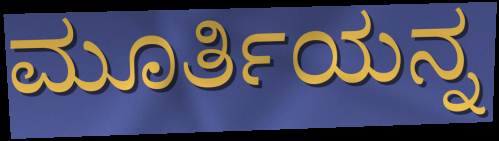
ಮೂರ್ತಿಯನ್ನ